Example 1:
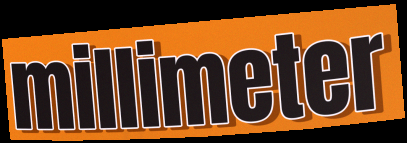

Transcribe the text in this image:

millimeter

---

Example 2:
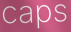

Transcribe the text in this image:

caps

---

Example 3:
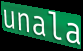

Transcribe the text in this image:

unala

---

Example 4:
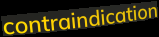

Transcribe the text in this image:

contraindication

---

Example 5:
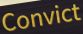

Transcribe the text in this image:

Convict